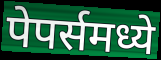
पेपर्समध्ये